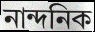
নান্দনিক